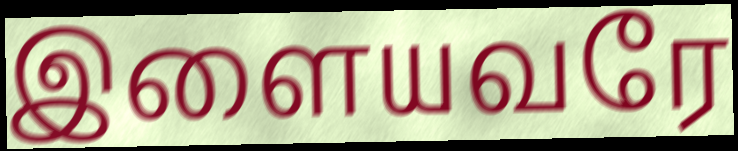
இளையவரே